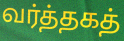
வர்த்தகத்